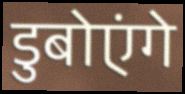
डुबोएंगे